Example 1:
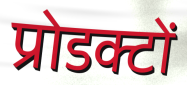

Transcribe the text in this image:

प्रोडक्टों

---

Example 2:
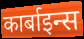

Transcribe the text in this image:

कार्बाइन्स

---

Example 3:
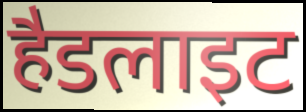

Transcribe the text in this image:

हैडलाइट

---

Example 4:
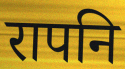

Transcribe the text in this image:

रापनि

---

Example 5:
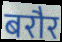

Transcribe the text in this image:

बरौर